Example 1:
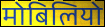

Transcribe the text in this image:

मोबिलियो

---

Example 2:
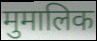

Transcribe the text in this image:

मुमालिक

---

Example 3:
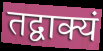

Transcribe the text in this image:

तद्वाक्यं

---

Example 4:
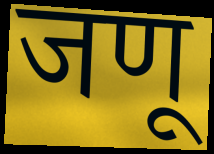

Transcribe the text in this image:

जणू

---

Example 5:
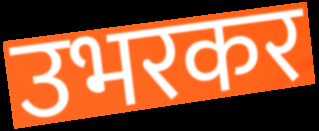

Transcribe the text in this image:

उभरकर